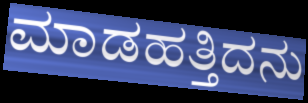
ಮಾಡಹತ್ತಿದನು